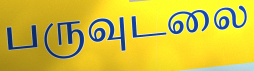
பருவுடலை